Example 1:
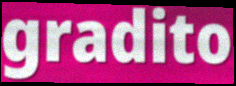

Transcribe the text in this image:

gradito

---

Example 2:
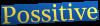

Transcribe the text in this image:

Possitive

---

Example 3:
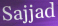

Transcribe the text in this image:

Sajjad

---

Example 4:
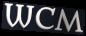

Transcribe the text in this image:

WCM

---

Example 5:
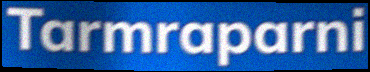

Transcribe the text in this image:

Tarmraparni